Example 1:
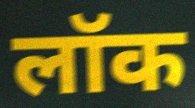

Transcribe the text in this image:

लॉक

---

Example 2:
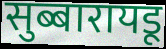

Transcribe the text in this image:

सुब्बारायडू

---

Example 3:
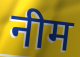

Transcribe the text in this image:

नीम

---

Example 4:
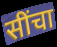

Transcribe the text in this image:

सींचा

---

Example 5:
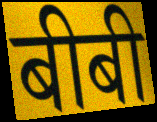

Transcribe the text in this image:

बीबी